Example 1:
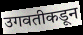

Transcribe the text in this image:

उगवतीकडून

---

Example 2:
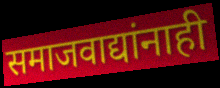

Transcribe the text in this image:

समाजवाद्यांनाही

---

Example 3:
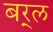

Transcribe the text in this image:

बर्ल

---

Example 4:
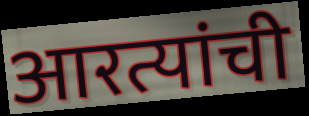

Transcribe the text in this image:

आरत्यांची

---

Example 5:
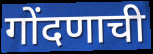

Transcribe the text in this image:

गोंदणाची